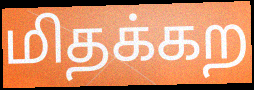
மிதக்கற